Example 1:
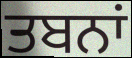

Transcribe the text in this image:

ਤਬਨਾਂ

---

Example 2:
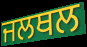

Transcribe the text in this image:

ਜਲਥਲ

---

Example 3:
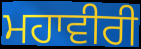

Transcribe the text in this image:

ਮਹਾਵੀਰੀ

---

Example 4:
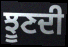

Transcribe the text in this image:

ਝੂਣਦੀ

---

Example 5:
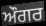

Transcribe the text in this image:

ਔਗਰ